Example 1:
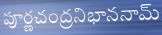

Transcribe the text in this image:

పూర్ణచంద్రనిభాననామ్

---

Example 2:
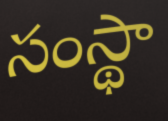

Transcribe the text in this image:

సంస్థా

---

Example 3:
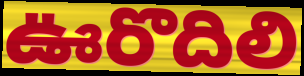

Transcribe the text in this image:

ఊరొదిలి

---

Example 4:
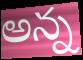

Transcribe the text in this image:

అన్న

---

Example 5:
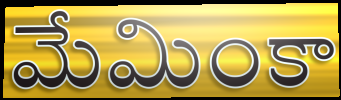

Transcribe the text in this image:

మేమింకా